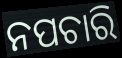
ନପଚାରି